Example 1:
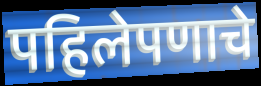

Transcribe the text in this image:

पहिलेपणाचे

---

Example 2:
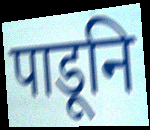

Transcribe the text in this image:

पाडूनि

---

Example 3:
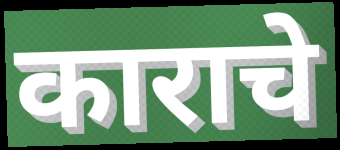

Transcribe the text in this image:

काराचे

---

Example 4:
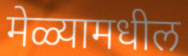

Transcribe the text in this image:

मेळ्यामधील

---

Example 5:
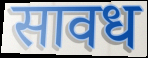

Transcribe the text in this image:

सावध